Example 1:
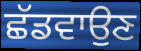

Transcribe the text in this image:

ਛੱਡਵਾਉਣ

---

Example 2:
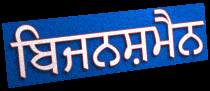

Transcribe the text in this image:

ਬਿਜਨਸ਼ਮੈਨ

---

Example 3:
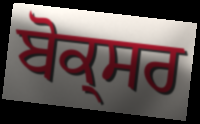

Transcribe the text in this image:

ਬੋਕ੍ਸਰ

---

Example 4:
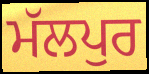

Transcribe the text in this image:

ਮੱਲਪੁਰ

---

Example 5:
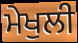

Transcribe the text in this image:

ਮੇਖੁਲੀ